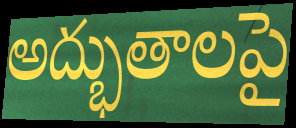
అద్భుతాలపై